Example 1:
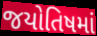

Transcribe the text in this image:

જયોતિષમાં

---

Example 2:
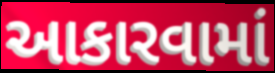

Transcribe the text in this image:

આકારવામાં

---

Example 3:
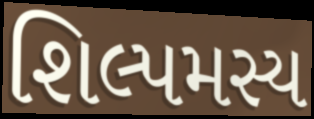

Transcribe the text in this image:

શિલ્પમસ્ય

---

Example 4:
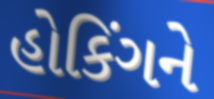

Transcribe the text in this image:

હોકિંગને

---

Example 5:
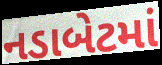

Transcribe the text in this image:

નડાબેટમાં